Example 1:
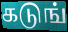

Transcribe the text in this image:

கடுங்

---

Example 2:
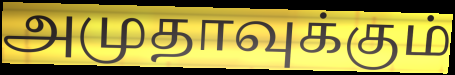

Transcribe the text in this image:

அமுதாவுக்கும்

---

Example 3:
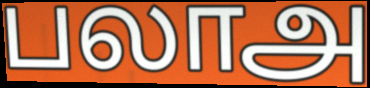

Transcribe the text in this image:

பலாஅ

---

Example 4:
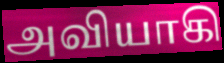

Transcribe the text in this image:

அவியாகி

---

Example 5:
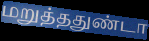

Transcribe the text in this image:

மறுத்ததுண்டா